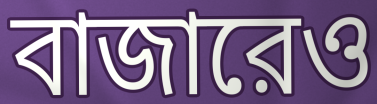
বাজারেও